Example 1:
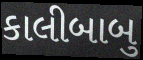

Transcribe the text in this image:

કાલીબાબુ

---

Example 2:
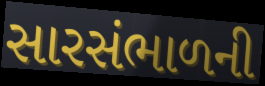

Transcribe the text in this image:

સારસંભાળની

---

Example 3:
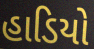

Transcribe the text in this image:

હાડિયો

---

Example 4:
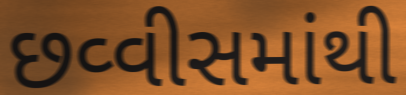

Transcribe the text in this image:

છવ્વીસમાંથી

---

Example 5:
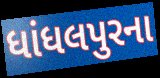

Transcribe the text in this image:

ધાંધલપુરના